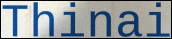
Thinai